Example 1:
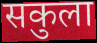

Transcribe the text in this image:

सकुला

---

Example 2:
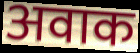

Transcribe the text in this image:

अवाक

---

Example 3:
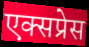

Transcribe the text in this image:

एक्सप्रेस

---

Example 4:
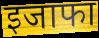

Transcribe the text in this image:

इजाफा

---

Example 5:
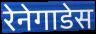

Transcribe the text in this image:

रेनेगाडेस